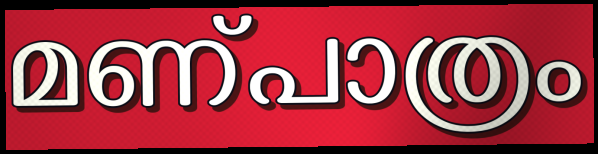
മണ്പാത്രം